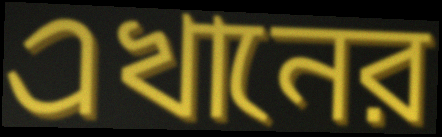
এখানের